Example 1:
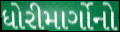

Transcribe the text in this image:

ધોરીમાર્ગોનો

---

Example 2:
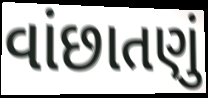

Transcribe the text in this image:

વાંછાતણું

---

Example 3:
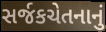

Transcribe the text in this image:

સર્જકચેતનાનું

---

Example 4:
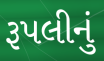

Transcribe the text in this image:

રૂપલીનું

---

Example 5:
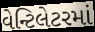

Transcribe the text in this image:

વેન્ટિલેટરમાં